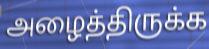
அழைத்திருக்க